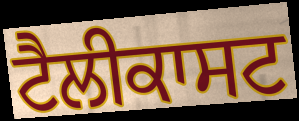
ਟੈਲੀਕਾਸਟ